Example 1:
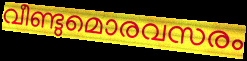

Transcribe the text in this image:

വീണ്ടുമൊരവസരം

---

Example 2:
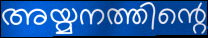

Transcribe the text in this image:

അയ്മനത്തിന്റെ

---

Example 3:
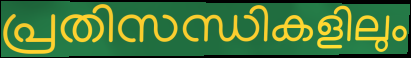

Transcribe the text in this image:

പ്രതിസന്ധികളിലും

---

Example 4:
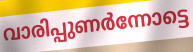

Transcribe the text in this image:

വാരിപ്പുണർന്നോട്ടെ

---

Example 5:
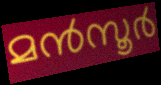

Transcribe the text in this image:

മൻസൂർ